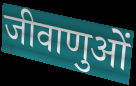
जीवाणुओं